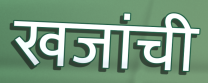
खजांची